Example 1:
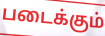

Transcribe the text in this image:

படைக்கும்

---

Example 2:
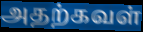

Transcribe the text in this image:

அதற்கவள்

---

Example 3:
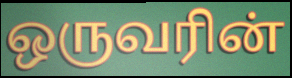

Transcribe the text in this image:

ஒருவரின்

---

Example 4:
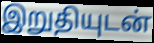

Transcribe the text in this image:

இறுதியுடன்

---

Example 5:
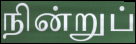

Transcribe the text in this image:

நின்றுப்